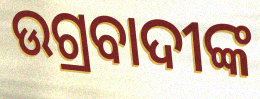
ଉଗ୍ରବାଦୀଙ୍କ